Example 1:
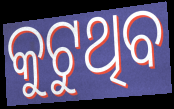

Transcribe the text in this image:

କୁଟୁଥିବ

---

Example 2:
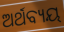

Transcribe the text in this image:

ଅର୍ଥବ୍ୟୟ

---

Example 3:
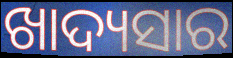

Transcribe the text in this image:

ଖାଦ୍ୟସାର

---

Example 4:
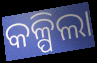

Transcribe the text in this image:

କଳ୍ପିଲା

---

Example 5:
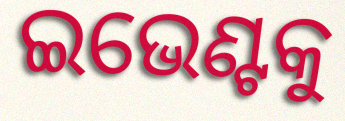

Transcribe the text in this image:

ଇଭେଣ୍ଟକୁ